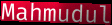
Mahmudul